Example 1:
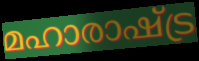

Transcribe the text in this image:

മഹാരാഷ്ട്ര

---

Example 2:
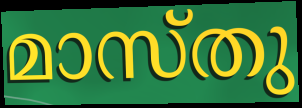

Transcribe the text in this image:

മാസ്തു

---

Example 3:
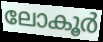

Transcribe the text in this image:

ലോകൂർ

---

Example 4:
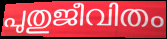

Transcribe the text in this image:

പുതുജീവിതം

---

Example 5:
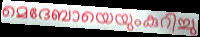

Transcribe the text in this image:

മെദേബായെയുംകുറിച്ചു